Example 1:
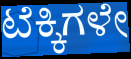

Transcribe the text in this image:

ಟೆಕ್ಕಿಗಳೇ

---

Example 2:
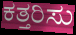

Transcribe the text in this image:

ಕತ್ತರಿಸು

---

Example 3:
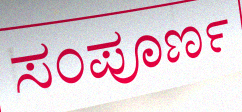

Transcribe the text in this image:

ಸಂಪೂರ್ಣ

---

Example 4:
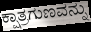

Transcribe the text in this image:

ಕ್ಷಾತ್ರಗುಣವನ್ನು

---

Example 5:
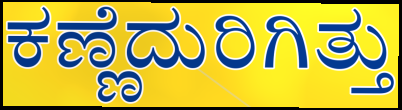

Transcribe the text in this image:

ಕಣ್ಣೆದುರಿಗಿತ್ತು